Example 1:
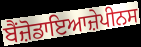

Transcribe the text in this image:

ਬੈਂਜ਼ੋਡਾਇਆਜ਼ੇਪੀਨਸ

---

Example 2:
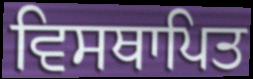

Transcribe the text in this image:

ਵਿਸਥਾਪਿਤ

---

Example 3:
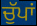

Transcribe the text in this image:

ਚੁੱਪਾਂ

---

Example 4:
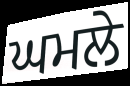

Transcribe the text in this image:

ਘਮਲੇ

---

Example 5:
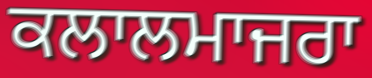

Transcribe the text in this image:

ਕਲਾਲਮਾਜਰਾ